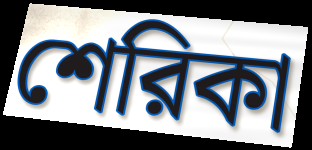
শেরিকা